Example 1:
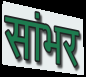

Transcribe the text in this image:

सांभर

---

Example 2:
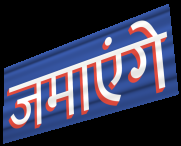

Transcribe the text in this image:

जमाएंगे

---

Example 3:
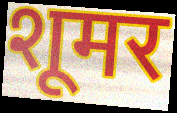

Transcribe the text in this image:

शूमर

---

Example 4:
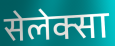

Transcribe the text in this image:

सेलेक्सा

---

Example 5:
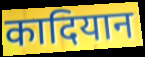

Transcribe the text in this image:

कादियान